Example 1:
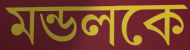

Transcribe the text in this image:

মন্ডলকে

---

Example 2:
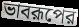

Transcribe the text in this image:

ভাবরূপের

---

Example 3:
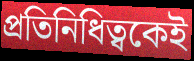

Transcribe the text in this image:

প্রতিনিধিত্বকেই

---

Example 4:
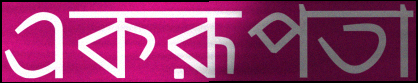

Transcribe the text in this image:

একরূপতা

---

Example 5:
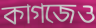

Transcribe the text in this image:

কাগজেও